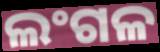
ଲଂଗଳ